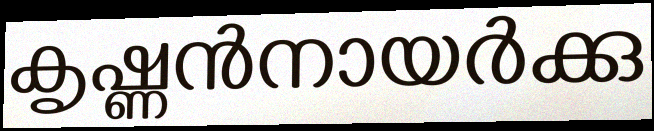
കൃഷ്ണൻനായർക്കു